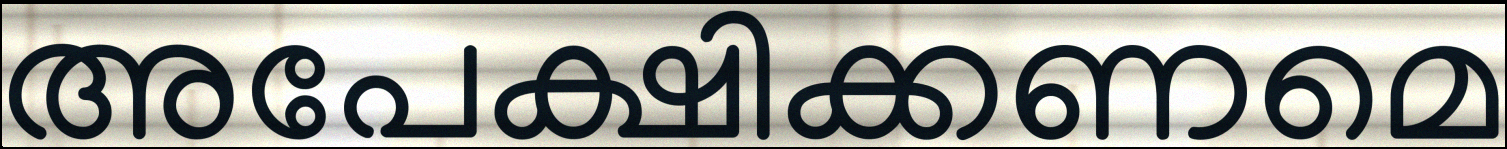
അപേക്ഷിക്കണമെ